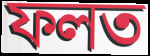
ফলত